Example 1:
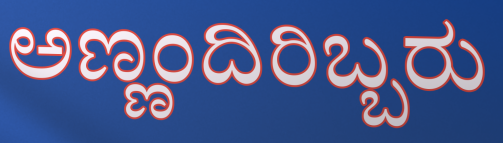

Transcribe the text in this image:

ಅಣ್ಣಂದಿರಿಬ್ಬರು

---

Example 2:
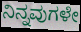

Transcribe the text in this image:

ನಿನ್ನವುಗಳೇ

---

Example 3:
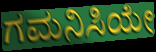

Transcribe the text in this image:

ಗಮನಿಸಿಯೇ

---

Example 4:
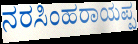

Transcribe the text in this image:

ನರಸಿಂಹರಾಯಪ್ಪ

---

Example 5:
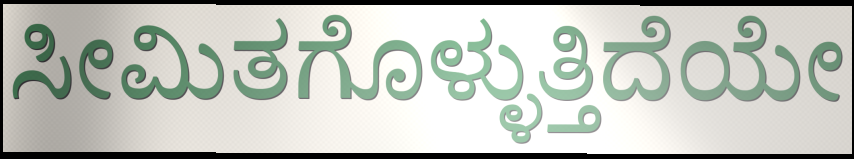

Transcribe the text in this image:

ಸೀಮಿತಗೊಳ್ಳುತ್ತಿದೆಯೇ